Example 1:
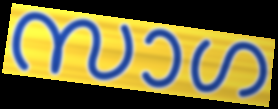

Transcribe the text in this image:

സാഗ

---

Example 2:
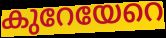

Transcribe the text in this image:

കുറേയേറെ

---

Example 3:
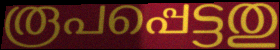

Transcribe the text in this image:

രൂപപ്പെട്ടതു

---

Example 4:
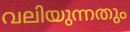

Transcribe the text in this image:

വലിയുന്നതും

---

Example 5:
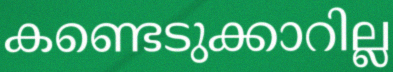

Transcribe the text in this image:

കണ്ടെടുക്കാറില്ല